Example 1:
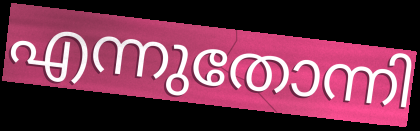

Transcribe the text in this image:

എന്നുതോന്നി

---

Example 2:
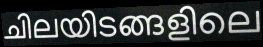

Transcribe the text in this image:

ചിലയിടങ്ങളിലെ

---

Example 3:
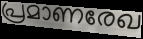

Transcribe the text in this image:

പ്രമാണരേഖ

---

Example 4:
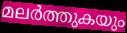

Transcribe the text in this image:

മലർത്തുകയും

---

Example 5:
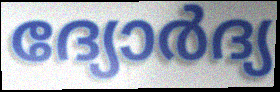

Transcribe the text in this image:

ദ്യോർദ്യ